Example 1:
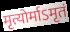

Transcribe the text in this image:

मृत्योर्माऽमृतं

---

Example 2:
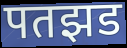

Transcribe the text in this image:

पतझड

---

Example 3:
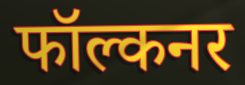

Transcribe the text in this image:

फॉल्कनर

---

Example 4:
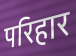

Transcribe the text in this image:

परिहार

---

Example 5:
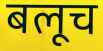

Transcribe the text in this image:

बलूच